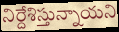
నిర్దేశిస్తున్నాయని